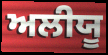
ਅਲੀਯੂ